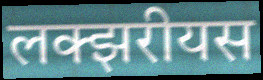
लक्झरीयस